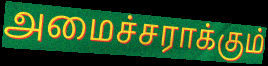
அமைச்சராக்கும்